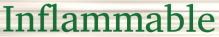
Inflammable